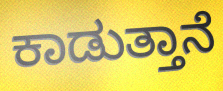
ಕಾಡುತ್ತಾನೆ